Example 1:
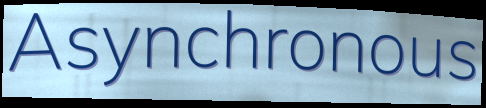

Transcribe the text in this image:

Asynchronous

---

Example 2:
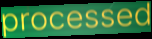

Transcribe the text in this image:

processed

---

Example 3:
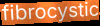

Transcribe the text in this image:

fibrocystic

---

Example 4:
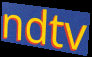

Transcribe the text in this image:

ndtv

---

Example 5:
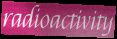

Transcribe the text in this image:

radioactivity